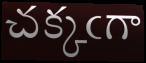
చక్కఁగా